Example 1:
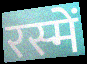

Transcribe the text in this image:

रस्‍में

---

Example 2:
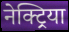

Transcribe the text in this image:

नेक्ट्रिया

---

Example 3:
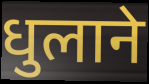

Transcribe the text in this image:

धुलाने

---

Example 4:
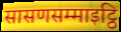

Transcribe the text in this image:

सासणसम्माइट्ठि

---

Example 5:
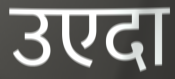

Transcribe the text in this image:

उएदा